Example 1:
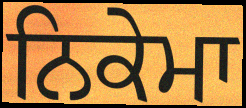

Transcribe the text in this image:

ਨਿਕੇਮਾ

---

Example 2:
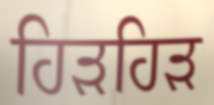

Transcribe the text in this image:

ਹਿੜਹਿੜ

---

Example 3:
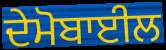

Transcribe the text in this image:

ਦੇਮੋਬਾਈਲ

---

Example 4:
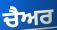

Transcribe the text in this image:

ਚੈਅਰ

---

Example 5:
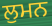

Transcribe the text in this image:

ਲੁਮਨ